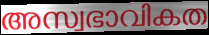
അസ്വഭാവികത